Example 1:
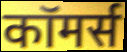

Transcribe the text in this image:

कॉमर्स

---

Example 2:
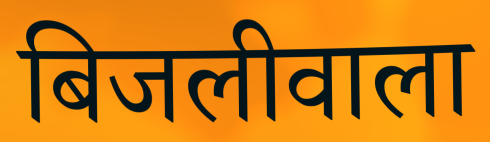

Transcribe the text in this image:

बिजलीवाला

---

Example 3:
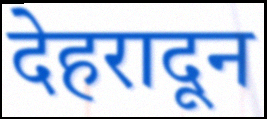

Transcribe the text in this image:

देहरादून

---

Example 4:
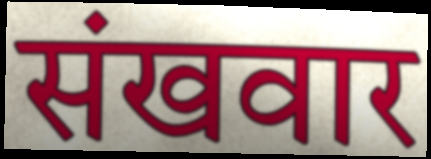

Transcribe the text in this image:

संखवार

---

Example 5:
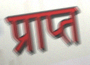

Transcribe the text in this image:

प्राप्‍त